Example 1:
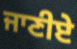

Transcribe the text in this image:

ਜਾਣੀਏ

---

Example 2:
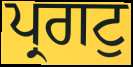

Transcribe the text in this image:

ਪ੍ਰਗਟੁ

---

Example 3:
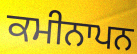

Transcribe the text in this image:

ਕਮੀਨਾਪਨ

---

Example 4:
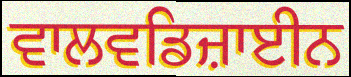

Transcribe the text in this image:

ਵਾਲਵਡਿਜ਼ਾਈਨ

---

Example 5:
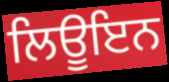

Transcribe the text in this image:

ਲਿਊਇਨ